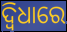
ଦ୍ୱିଧାରେ